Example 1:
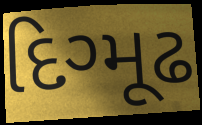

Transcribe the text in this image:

દિગ્મૂઢ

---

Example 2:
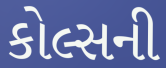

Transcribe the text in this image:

કોલ્સની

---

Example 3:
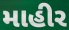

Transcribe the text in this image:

માહીર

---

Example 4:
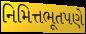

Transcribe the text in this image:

નિમિત્તભૂતપણે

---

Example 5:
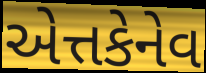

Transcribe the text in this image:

એત્તકેનેવ